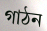
গাঠন